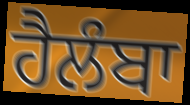
ਹੈਲੰਬਾ